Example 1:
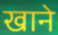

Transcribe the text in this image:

खाने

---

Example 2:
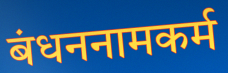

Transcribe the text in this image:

बंधननामकर्म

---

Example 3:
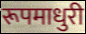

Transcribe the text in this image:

रूपमाधुरी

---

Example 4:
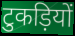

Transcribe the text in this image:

टुकड़ियों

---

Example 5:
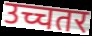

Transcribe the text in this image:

उच्चतर